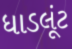
ધાડલૂંટ